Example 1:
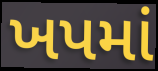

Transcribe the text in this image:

ખપમાં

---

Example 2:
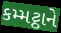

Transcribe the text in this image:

કમ્મટ્ઠાને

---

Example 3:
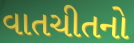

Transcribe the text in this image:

વાતચીતનો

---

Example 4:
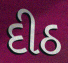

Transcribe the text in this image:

દીઠ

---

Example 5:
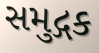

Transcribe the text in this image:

સમુદ્ગક